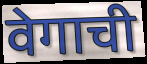
वेगाची